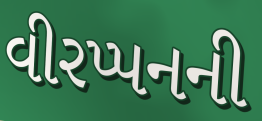
વીરપ્પનની